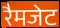
रैमजेट